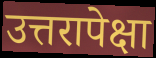
उत्तरापेक्षा